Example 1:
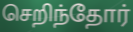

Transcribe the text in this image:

செறிந்தோர்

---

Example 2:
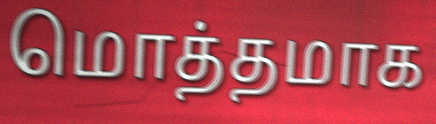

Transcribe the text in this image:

மொத்தமாக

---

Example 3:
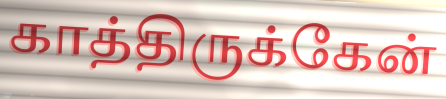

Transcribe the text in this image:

காத்திருக்கேன்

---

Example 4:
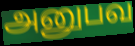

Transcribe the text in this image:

அனுபவ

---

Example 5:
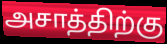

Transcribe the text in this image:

அசாத்திற்கு